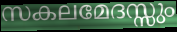
സകലമേദസ്സും